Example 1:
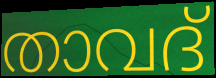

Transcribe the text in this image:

താവദ്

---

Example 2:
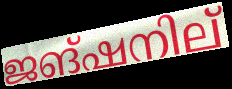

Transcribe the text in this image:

ജങ്ഷനില്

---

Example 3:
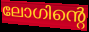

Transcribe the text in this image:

ലോഗിന്റെ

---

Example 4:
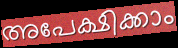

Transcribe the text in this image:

അപേക്ഷിക്കാം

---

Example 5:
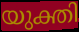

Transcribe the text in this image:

യുക്തി